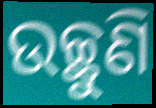
ଉଚ୍ଛୁଣି